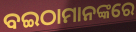
ବଇଠାମାନଙ୍କରେ